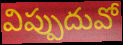
విప్పుదువో